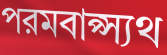
পরমবাপ্স্যথ